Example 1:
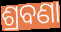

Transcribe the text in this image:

ଶ୍ରବଣା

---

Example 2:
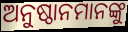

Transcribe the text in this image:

ଅନୁଷ୍ଠାନମାନଙ୍କୁ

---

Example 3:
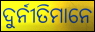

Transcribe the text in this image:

ଦୁର୍ନୀତିମାନେ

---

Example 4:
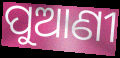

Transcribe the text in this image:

ପୁଆଣୀ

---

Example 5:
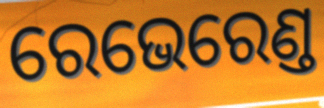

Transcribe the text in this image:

ରେଭେରେଣ୍ଡ